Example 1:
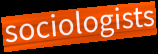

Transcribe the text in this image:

sociologists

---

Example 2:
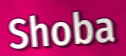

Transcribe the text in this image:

Shoba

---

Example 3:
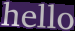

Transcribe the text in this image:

hello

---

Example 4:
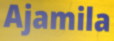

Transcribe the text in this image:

Ajamila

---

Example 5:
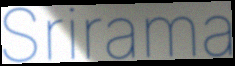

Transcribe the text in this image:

Srirama